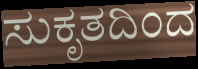
ಸುಕೃತದಿಂದ